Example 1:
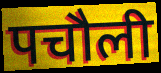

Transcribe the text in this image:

पचौली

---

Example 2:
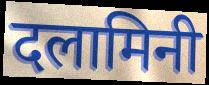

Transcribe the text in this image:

दलामिनी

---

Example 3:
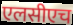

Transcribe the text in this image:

एलसीएच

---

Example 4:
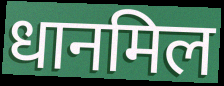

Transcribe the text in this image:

धानमिल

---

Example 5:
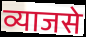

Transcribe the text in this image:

व्याजसे